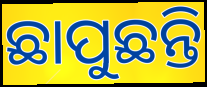
ଛାପୁଛନ୍ତି